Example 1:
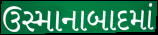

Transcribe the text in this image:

ઉસ્માનાબાદમાં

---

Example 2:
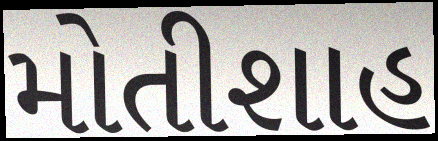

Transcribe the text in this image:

મોતીશાહ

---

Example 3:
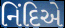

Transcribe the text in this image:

નિંદિએ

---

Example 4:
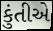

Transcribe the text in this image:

કુંતીએ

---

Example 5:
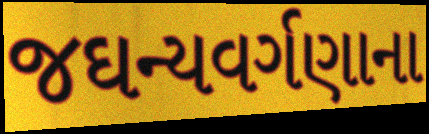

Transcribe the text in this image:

જઘન્યવર્ગણાના